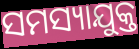
ସମସ୍ୟାଯୁକ୍ତ